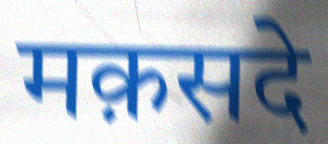
मक़सदे